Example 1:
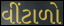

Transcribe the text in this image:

વીંટાળો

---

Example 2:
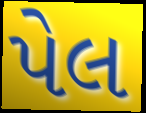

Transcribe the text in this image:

પેલ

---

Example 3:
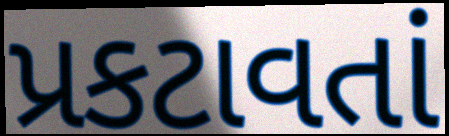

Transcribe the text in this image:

પ્રકટાવતાં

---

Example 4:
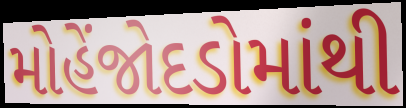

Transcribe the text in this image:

મોહેંજોદડોમાંથી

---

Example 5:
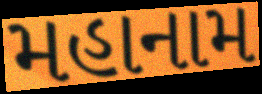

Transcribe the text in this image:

મહાનામ